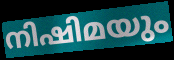
നിഷിമയും